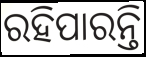
ରହିପାରନ୍ତି